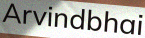
Arvindbhai